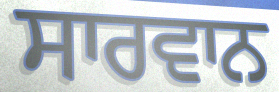
ਸਾਰਵਾਨ